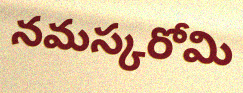
నమస్కరోమి